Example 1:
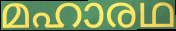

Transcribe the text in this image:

മഹാരഥ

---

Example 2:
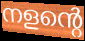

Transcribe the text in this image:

നളന്റെ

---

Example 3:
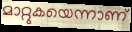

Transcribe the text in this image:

മാറ്റുകയെന്നാണ്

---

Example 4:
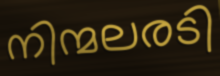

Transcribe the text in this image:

നിന്മലരടി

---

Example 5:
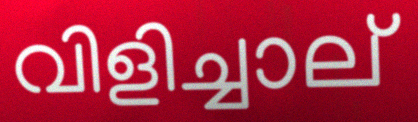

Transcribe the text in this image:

വിളിച്ചാല്